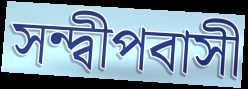
সন্দ্বীপবাসী